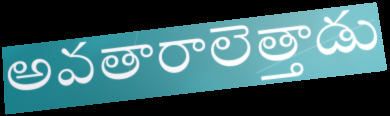
అవతారాలెత్తాడు